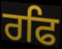
ਰਫਿ